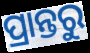
ପ୍ରାନ୍ତରୁ